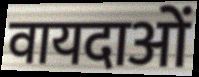
वायदाओं